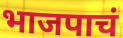
भाजपाचं